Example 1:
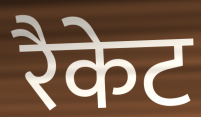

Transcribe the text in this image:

रैकेट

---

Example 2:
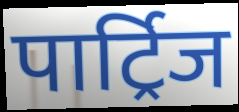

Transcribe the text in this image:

पार्ट्रिज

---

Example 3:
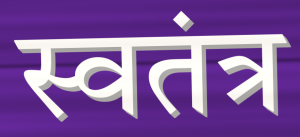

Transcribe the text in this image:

स्‍वतंत्र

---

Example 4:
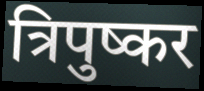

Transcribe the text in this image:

त्रिपुष्कर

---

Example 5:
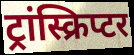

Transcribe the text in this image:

ट्रांस्क्रिप्टर